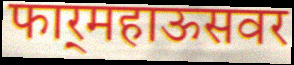
फार्महाऊसवर